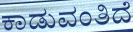
ಕಾಡುವಂತಿದೆ